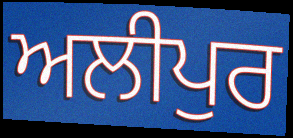
ਅਲੀਪੁਰ